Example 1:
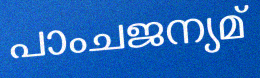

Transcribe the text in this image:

പാംചജന്യമ്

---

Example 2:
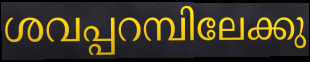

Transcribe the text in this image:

ശവപ്പറമ്പിലേക്കു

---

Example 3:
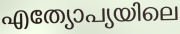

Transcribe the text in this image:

എത്യോപ്യയിലെ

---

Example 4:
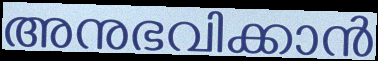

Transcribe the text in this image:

അനുഭവിക്കാൻ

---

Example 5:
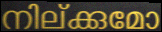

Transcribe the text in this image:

നില്ക്കുമോ